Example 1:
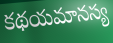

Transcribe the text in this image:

కథయమానస్య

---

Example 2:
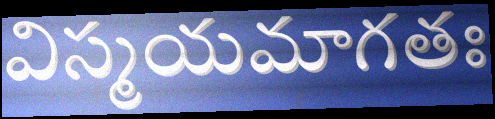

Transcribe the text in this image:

విస్మయమాగతః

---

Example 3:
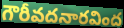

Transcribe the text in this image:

గౌరీవదనారవింద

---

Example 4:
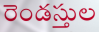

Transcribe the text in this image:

రెండస్తుల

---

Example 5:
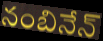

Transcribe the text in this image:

నంబినేన్